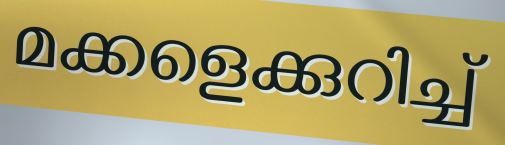
മക്കളെക്കുറിച്ച്